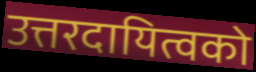
उत्तरदायित्वको